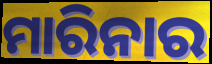
ମାରିନାର